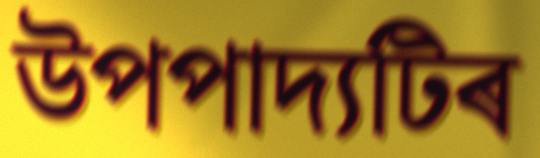
উপপাদ্যটিৰ